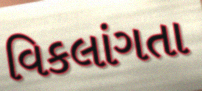
વિકલાંગતા